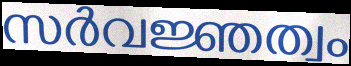
സർവജ്ഞത്വം